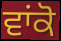
ਵਾਂਕੋ